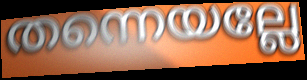
തന്നെയല്ലേ